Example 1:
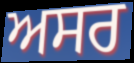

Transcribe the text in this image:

ਅਸਰ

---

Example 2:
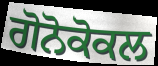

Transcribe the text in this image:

ਗੋਨੋਕੋਕਲ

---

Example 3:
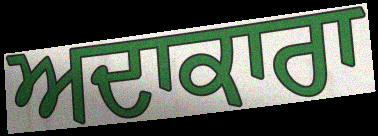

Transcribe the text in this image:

ਅਦਾਕਾਰਾ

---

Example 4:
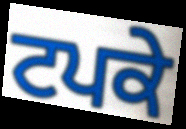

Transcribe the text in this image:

ਟਪਕੇ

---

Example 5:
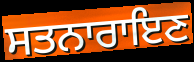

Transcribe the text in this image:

ਸਤਨਾਰਾਇਣ